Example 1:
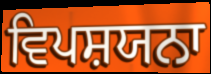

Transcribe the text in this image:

ਵਿਪਸ਼ਯਨਾ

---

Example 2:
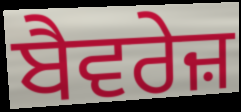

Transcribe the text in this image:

ਬੈਵਰੇਜ਼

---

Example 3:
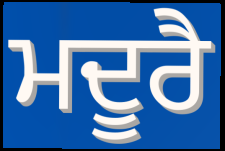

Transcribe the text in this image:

ਮਦੂਰੈ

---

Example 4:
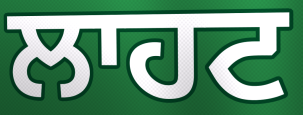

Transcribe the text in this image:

ਲਾਹਟ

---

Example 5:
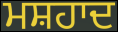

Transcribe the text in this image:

ਮਸ਼ਹਾਦ